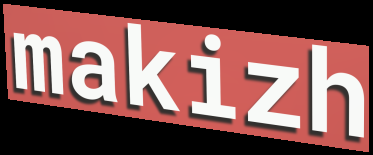
makizh